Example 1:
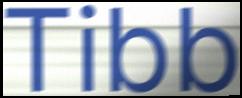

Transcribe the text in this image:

Tibb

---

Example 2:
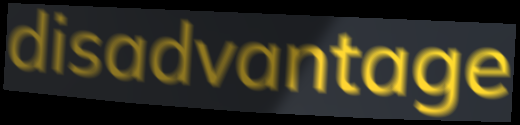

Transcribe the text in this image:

disadvantage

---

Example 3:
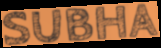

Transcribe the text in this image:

SUBHA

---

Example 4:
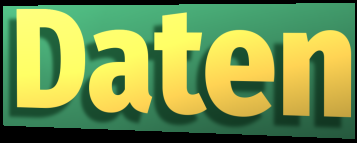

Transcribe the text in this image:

Daten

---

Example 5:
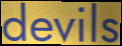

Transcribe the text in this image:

devils